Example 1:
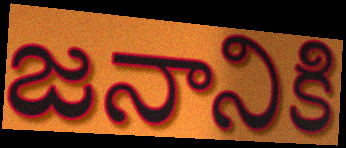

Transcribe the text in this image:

జనానికి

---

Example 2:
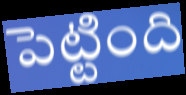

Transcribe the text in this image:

పెట్టింది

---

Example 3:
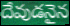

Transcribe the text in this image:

దేవుడనైన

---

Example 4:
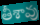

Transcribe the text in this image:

తీశావు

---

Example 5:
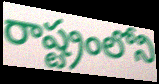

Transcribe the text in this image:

రాష్ట్రంలోని